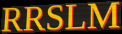
RRSLM